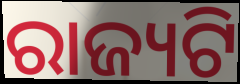
ରାଜ୍ୟଟି